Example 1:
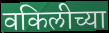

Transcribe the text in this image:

वकिलीच्या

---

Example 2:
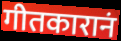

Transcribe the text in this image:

गीतकारानं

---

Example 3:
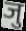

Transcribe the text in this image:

जु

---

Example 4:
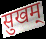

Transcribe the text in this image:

सुखम्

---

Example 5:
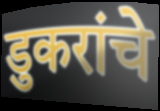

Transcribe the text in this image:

डुकरांचे